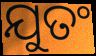
ଯୁତଂ